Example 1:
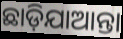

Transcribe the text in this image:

ଛାଡ଼ିଯାଆନ୍ତା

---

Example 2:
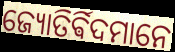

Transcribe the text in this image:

ଜ୍ୟୋତିର୍ଵିଦମାନେ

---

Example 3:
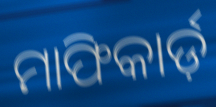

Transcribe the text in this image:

ମାଫିକାର୍ଡ଼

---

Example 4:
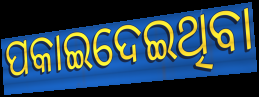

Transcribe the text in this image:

ପକାଇଦେଇଥିବା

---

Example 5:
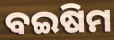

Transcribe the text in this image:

ବଇଷିମ